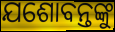
ଯଶୋବନ୍ତଙ୍କୁ